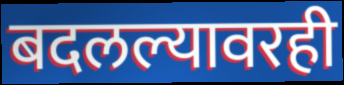
बदलल्यावरही